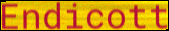
Endicott